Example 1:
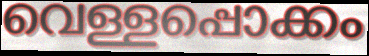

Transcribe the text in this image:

വെള്ളപ്പൊക്കം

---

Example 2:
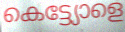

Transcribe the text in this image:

കെട്ട്യോളെ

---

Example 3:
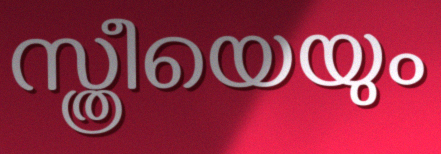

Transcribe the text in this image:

സ്ത്രീയെയും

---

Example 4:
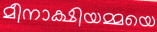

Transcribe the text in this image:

മീനാക്ഷിയമ്മയെ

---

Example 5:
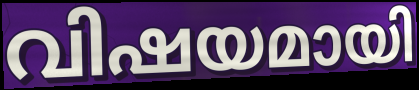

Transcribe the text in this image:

വിഷയമായി